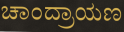
ಚಾಂದ್ರಾಯಣ